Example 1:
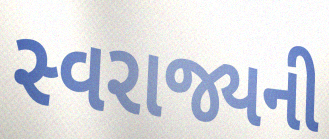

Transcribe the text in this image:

સ્વરાજ્યની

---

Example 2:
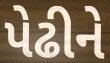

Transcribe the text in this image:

પેઢીને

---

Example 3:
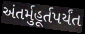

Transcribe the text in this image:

અંતર્મુહૂર્તપર્યંત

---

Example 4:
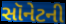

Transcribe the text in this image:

સૉનેટની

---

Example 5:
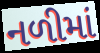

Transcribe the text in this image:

નળીમાં